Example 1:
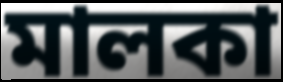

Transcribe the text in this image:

মালকা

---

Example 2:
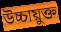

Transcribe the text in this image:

উচ্চায়ুক্ত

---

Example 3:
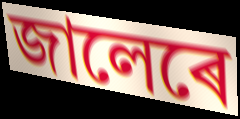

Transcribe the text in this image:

জালেৰে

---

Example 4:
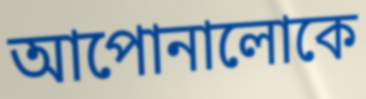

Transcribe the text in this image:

আপোনালোকে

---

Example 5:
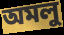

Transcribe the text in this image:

অমলু